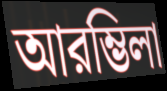
আরম্ভিলা